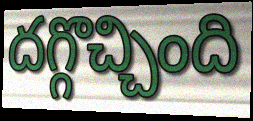
దగ్గొచ్చింది